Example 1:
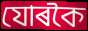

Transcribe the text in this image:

যোৰকৈ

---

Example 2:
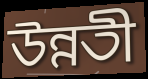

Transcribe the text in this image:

উন্নতী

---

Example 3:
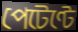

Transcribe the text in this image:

পেটেণ্টে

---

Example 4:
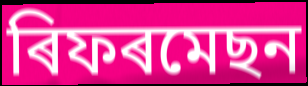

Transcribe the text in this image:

ৰিফৰমেছন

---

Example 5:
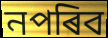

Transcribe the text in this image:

নপৰিব